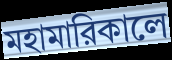
মহামারিকালে